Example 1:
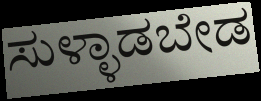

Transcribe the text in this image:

ಸುಳ್ಳಾಡಬೇಡ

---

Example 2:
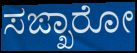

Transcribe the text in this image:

ಸಙ್ಖಾರೋ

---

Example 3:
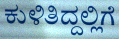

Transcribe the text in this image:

ಕುಳಿತಿದ್ದಲ್ಲಿಗೆ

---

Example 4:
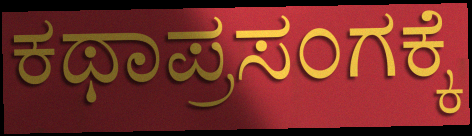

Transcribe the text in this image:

ಕಥಾಪ್ರಸಂಗಕ್ಕೆ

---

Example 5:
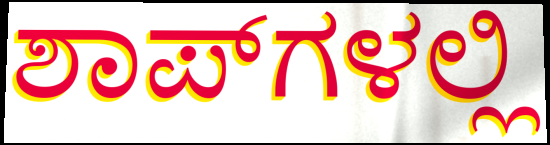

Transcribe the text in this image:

ಶಾಪ್‌ಗಳಲ್ಲಿ